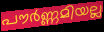
പൗർണ്ണമിയല്ല